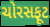
ચોરસફૂટ